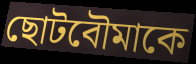
ছোটবৌমাকে